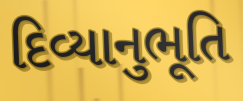
દિવ્યાનુભૂતિ